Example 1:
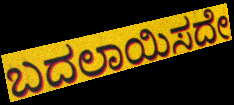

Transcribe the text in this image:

ಬದಲಾಯಿಸದೇ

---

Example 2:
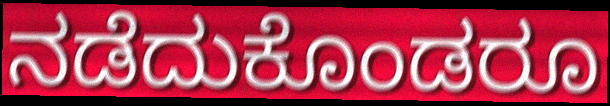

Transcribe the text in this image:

ನಡೆದುಕೊಂಡರೂ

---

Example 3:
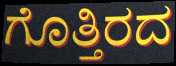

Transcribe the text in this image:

ಗೊತ್ತಿರದ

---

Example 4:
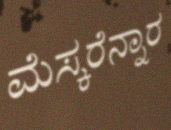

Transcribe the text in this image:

ಮೆಸ್ಕರೆನ್ನಾರ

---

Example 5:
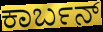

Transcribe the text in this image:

ಕಾರ್ಬನ್